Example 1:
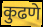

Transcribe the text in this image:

कुढणे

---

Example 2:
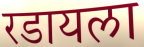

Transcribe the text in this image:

रडायला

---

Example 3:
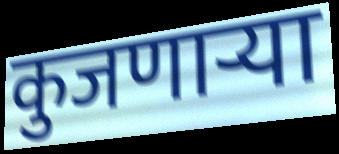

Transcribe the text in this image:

कुजणाऱ्या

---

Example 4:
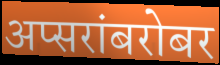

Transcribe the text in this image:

अप्सरांबरोबर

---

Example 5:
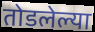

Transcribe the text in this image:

तोडलेल्या